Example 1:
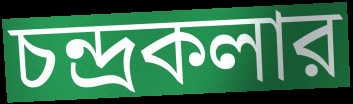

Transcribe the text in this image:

চন্দ্রকলার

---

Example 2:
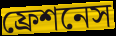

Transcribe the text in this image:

ফ্রেশনেস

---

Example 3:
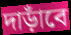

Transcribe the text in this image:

দাড়াঁবে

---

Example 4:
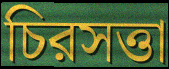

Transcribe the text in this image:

চিরসত্তা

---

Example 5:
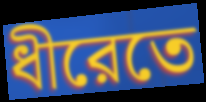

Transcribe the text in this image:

ধীরেতে